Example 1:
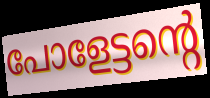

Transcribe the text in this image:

പോളേട്ടന്റെ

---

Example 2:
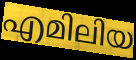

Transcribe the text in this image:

എമിലിയ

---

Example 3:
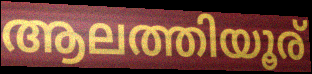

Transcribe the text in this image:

ആലത്തിയൂര്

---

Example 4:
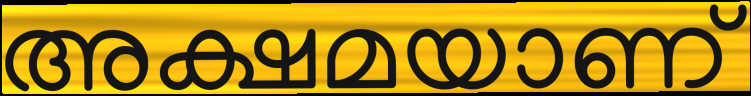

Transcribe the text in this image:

അക്ഷമയാണ്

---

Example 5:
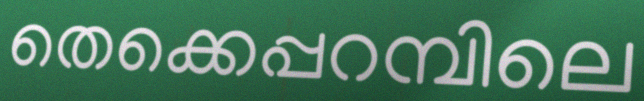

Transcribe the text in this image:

തെക്കെപ്പറമ്പിലെ